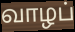
வாழப்